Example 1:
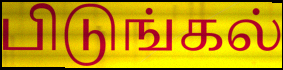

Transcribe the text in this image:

பிடுங்கல்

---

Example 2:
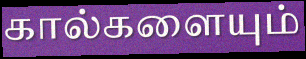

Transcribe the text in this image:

கால்களையும்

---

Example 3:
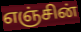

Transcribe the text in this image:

எஞ்சின்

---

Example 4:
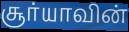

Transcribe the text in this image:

சூர்யாவின்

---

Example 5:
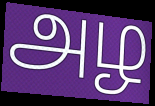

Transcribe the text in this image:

அழ